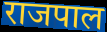
राजपाल